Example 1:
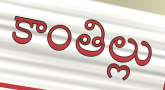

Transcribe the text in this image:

కాంతిల్లు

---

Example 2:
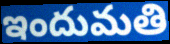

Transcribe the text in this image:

ఇందుమతి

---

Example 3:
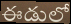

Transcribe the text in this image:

ఈడులో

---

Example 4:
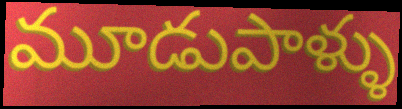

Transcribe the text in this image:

మూడుపాళ్ళు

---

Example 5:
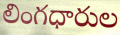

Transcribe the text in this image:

లింగధారుల